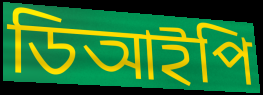
ডিআইপি